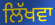
ਲਿੱਖਵਾ